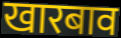
खारबाव